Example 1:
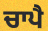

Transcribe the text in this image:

ਚਾਪੈ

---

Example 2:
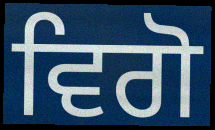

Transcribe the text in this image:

ਵਿਗੋ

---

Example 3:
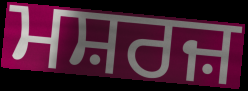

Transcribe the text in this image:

ਮਸ਼ਰਜ਼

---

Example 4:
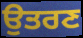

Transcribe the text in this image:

ਉਤਰਣ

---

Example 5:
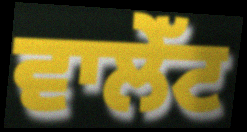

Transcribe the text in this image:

ਵਾਲੇੱਟ